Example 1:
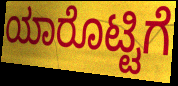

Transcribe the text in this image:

ಯಾರೊಟ್ಟಿಗೆ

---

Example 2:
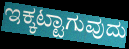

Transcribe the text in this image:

ಇಕ್ಕಟ್ಟಾಗುವುದು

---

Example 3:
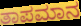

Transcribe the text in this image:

ತಾಪಮಾನ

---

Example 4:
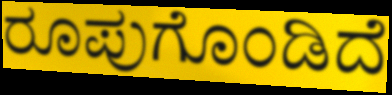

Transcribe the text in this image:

ರೂಪುಗೊಂಡಿದೆ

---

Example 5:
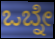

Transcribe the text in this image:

ಒಬ್ನೇ